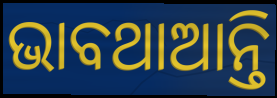
ଭାବଥାଆନ୍ତି